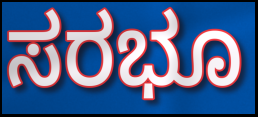
ಸರಭೂ